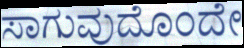
ಸಾಗುವುದೊಂದೇ